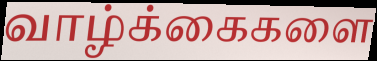
வாழ்க்கைகளை